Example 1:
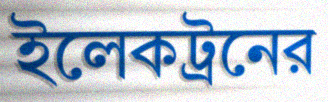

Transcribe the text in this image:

ইলেকট্রনের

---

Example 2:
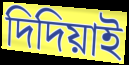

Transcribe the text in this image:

দিদিয়াই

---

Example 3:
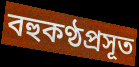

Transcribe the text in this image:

বহুকণ্ঠপ্রসূত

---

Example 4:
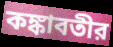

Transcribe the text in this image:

কঙ্কাবতীর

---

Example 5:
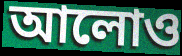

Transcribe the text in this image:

আলোও